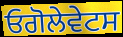
ਓਗੋਲੇਵੇਟਸ